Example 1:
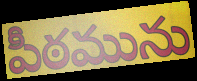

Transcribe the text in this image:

పీఠమును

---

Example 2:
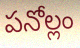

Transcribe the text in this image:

పనోల్లం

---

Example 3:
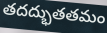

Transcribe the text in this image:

తదద్భుతతమం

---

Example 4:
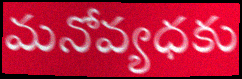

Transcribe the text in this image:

మనోవ్యధకు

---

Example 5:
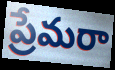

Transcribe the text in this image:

ప్రేమరా